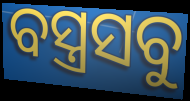
ବସ୍ତ୍ରସବୁ